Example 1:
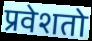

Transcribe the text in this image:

प्रवेशतो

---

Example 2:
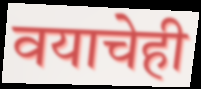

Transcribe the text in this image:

वयाचेही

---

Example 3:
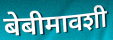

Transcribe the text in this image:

बेबीमावशी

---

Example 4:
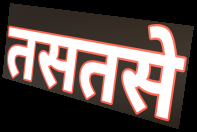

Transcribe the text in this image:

तसतसे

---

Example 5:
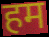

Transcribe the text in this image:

हम